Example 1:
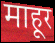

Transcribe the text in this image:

माहूर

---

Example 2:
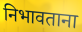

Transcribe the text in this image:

निभावताना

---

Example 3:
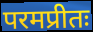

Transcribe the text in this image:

परमप्रीतः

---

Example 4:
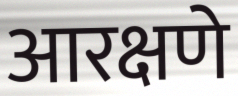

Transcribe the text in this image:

आरक्षणे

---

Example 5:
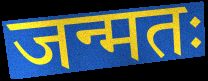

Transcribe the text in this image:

जन्मतः